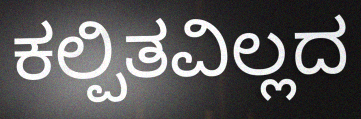
ಕಲ್ಪಿತವಿಲ್ಲದ